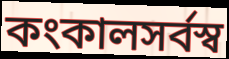
কংকালসর্বস্ব